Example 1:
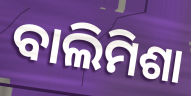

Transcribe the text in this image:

ବାଲିମିଶା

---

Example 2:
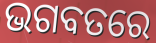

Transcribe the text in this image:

ଭଗବତରେ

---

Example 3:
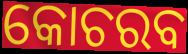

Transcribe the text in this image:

କୋଚରବ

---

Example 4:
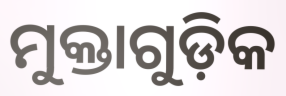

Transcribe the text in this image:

ମୁକ୍ତାଗୁଡ଼ିକ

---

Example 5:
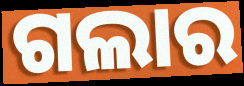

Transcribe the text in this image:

ଗଲାର